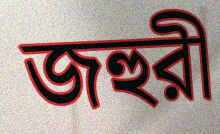
জহুরী